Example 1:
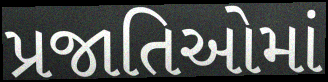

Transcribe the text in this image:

પ્રજાતિઓમાં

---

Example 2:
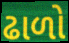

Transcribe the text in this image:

ઢાળો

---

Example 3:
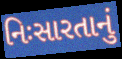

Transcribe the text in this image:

નિઃસારતાનું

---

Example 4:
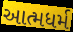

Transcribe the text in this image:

આત્મધર્મ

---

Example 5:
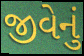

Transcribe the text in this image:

જીવેનું